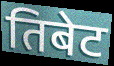
तिबेट